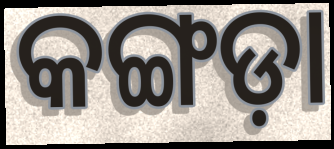
କଙ୍ଗଡ଼ା